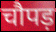
चौपड़